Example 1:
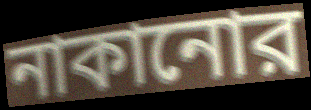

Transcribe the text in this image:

নাকানোর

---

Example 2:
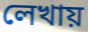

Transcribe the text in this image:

লেখায়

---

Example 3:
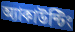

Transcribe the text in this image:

অ্যাকাউন্টিং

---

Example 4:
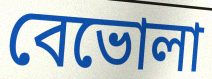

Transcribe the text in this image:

বেভোলা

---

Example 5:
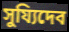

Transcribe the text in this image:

সুয্যিদেব